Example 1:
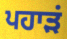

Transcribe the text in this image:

ਪਹਾੜਂ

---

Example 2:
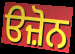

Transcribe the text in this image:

ੳਜ਼ੋਨ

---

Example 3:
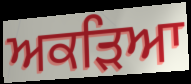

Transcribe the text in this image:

ਅਕੜਿਆ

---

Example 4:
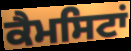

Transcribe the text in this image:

ਕੈਮਸਿਟਾਂ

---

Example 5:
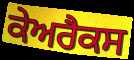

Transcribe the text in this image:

ਕੇਅਰੈਕਸ